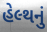
હેલ્થનું